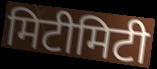
मिटीमिटी